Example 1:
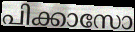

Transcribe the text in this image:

പിക്കാസോ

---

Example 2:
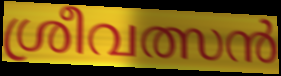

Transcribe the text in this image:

ശ്രീവത്സൻ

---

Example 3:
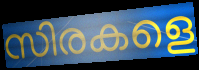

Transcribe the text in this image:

സിരകളെ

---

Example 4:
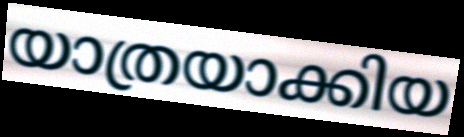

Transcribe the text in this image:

യാത്രയാക്കിയ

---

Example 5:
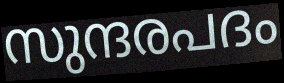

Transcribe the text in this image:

സുന്ദരപദം